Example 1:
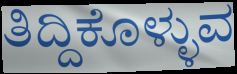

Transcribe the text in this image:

ತಿದ್ದಿಕೊಳ್ಳುವ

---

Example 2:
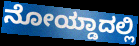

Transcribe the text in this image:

ನೋಯ್ಡಾದಲ್ಲಿ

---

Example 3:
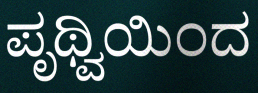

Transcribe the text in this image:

ಪೃಥ್ವಿಯಿಂದ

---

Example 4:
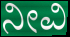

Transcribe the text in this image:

ನೀವಿ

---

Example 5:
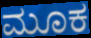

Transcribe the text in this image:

ಮೂಕ